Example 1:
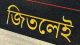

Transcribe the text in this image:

জিতলেই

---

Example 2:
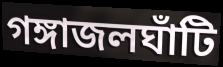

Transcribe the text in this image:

গঙ্গাজলঘাঁটি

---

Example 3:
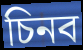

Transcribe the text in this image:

চিনব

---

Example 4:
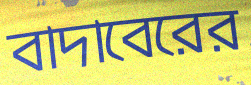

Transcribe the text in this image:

বাদাবেরের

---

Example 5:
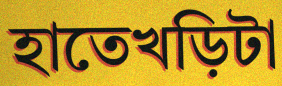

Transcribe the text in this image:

হাতেখড়িটা